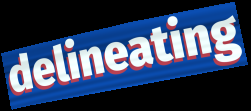
delineating